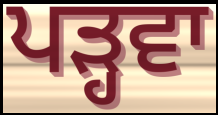
ਪੜ੍ਹਵਾ